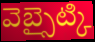
వెబ్సైట్కి